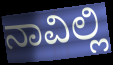
ನಾವಿಲ್ಲಿ